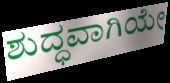
ಶುದ್ಧವಾಗಿಯೇ